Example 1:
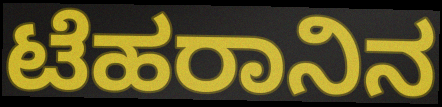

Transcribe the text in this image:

ಟೆಹರಾನಿನ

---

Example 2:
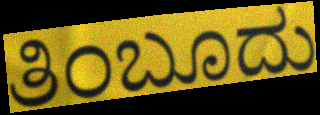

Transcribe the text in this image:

ತಿಂಬೂದು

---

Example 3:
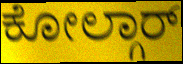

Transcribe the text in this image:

ಕೋಲ್ಗಾರ್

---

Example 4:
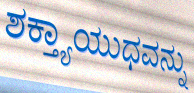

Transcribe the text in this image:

ಶಕ್ತ್ಯಾಯುಧವನ್ನು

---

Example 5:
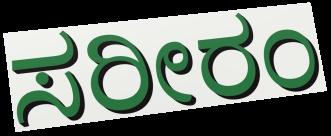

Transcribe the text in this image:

ಸರೀರಂ